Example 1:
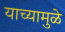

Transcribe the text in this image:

याच्यामुळे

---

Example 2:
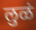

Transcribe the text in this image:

लुळं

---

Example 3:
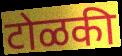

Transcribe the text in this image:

टोळकी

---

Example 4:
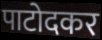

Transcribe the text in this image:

पाटोदकर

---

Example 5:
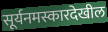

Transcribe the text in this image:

सूर्यनमस्कारदेखील